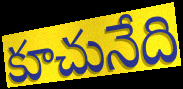
కూచునేది